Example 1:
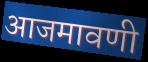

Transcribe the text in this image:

आजमावणी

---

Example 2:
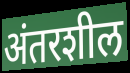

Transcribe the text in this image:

अंतरशील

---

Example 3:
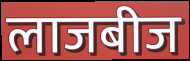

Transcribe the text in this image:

लाजबीज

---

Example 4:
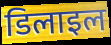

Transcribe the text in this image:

डिलाइल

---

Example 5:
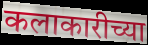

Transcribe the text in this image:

कलाकारीच्या